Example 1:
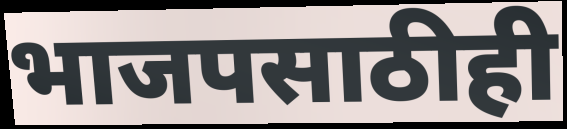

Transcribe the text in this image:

भाजपसाठीही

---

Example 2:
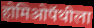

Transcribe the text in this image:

होमिओपॅथीला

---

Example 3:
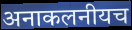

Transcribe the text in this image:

अनाकलनीयच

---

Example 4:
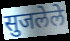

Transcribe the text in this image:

सुजलेले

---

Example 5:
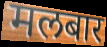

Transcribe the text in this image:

मलबार